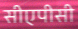
सीएपीसी